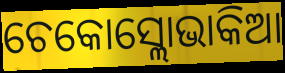
ଚେକୋସ୍ଲୋଭାକିଆ